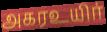
அகரஉயிர்